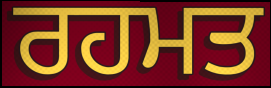
ਰਹਮਤ